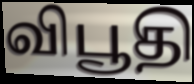
விபூதி